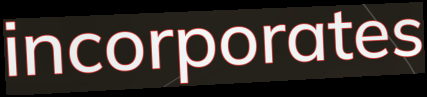
incorporates